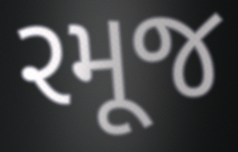
રમૂજ